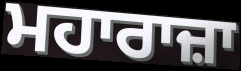
ਮਹਾਰਾਜ਼ਾ